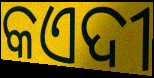
କଏଦୀ